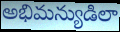
అభిమన్యుడిలా